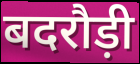
बदरौड़ी